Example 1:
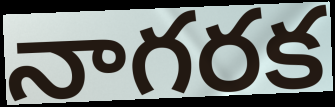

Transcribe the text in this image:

నాగరక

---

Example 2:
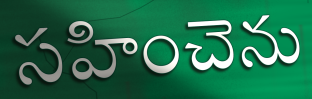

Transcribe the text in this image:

సహించెను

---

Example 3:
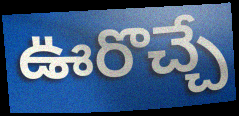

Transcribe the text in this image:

ఊరొచ్చే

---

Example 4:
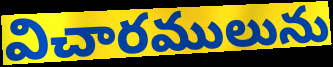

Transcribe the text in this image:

విచారములును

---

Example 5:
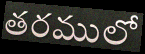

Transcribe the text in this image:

తరములో